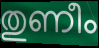
തുണീം